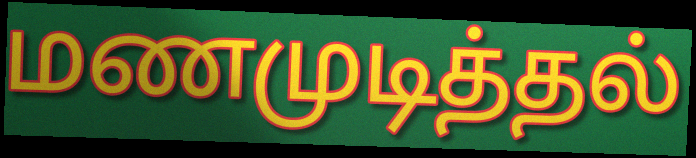
மணமுடித்தல்